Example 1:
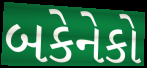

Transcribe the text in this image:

બકેનેકો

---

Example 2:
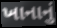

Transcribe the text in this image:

ખાનાનું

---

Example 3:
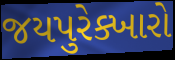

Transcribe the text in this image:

જયપુરેક્ખારો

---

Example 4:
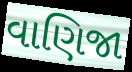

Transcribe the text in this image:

વાણિજા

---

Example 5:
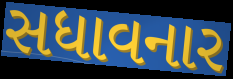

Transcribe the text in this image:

સધાવનાર